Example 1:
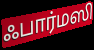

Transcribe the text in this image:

ஃபார்மஸி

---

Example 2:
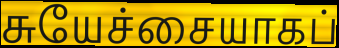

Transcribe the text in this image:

சுயேச்சையாகப்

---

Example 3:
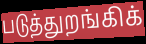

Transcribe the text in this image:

படுத்துறங்கிக்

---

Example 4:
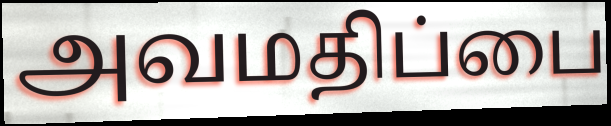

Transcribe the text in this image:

அவமதிப்பை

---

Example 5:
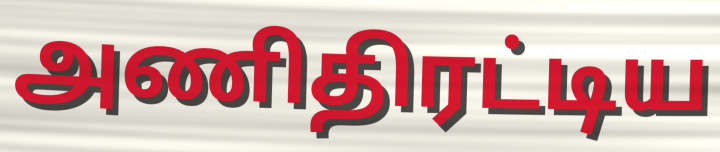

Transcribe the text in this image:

அணிதிரட்டிய